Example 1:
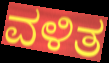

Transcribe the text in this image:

ವಳಿತ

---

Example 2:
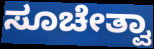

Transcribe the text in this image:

ಸೂಚೇತ್ವಾ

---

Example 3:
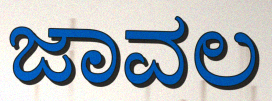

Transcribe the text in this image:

ಜಾವಲ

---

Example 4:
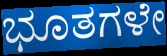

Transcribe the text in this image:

ಭೂತಗಳೇ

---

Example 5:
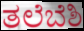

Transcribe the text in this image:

ತಲೆಬೆಶಿ